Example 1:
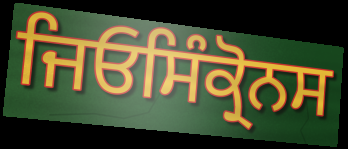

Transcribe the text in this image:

ਜਿਓਸਿੰਕ੍ਰੋਨਸ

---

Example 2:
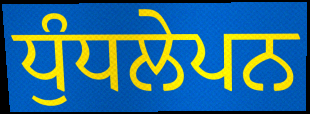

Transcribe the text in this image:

ਧੁੰਧਲੇਪਨ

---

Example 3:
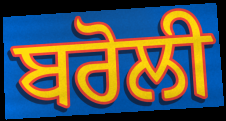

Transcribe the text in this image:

ਬਰੋਲੀ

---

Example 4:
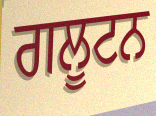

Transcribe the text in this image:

ਗਲੂਟਨ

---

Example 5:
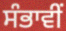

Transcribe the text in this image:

ਸੰਭਾਵੀਂ